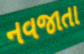
નવજાતા